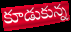
కూడుకున్న